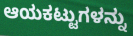
ಆಯಕಟ್ಟುಗಳನ್ನು